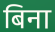
बिना